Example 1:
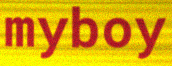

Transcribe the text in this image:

myboy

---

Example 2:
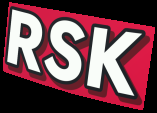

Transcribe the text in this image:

RSK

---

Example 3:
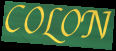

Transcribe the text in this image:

COLON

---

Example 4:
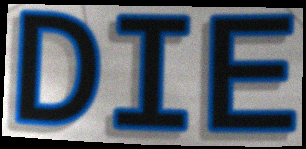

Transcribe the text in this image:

DIE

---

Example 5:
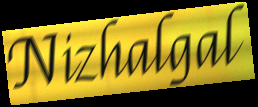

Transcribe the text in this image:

Nizhalgal